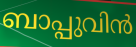
ബാപ്പുവിൻ